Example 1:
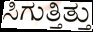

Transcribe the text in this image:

ಸಿಗುತ್ತಿತ್ತು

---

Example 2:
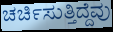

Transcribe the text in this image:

ಚರ್ಚಿಸುತ್ತಿದ್ದೆವು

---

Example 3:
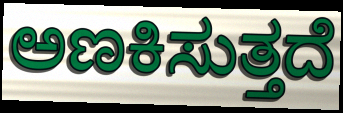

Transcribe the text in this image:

ಅಣಕಿಸುತ್ತದೆ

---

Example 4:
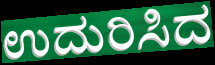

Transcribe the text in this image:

ಉದುರಿಸಿದ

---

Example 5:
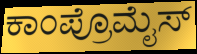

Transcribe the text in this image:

ಕಾಂಪ್ರೊಮೈಸ್